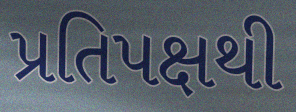
પ્રતિપક્ષથી